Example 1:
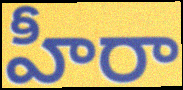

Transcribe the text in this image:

హీరా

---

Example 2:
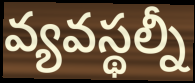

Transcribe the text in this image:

వ్యవస్థల్నీ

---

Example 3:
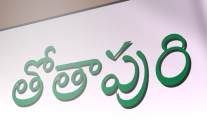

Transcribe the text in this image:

తోతాపురి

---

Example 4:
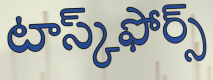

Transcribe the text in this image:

టాస్క్‌ఫోర్స్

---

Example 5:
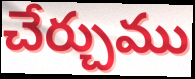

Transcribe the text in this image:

చేర్చుము